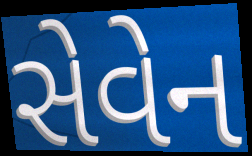
સેવેન